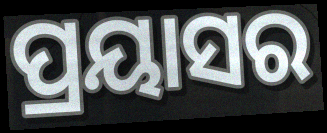
ପ୍ରୟାସର